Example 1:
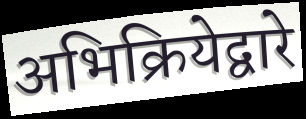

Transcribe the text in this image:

अभिक्रियेद्वारे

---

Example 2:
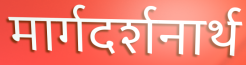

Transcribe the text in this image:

मार्गदर्शनार्थ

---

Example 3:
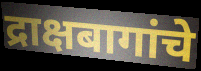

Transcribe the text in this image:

द्राक्षबागांचे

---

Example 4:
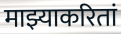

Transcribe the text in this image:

माझ्याकरितां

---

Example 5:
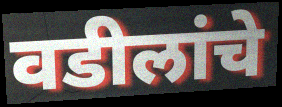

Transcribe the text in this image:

वडीलांचे